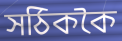
সঠিককৈ